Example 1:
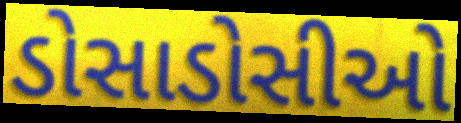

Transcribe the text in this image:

ડોસાડોસીઓ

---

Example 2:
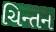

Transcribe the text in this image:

ચિન્તન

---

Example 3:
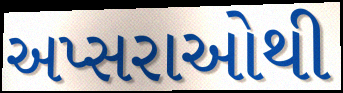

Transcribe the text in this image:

અપ્સરાઓથી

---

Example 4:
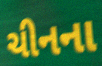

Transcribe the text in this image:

ચીનના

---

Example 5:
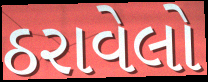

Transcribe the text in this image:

ઠરાવેલો